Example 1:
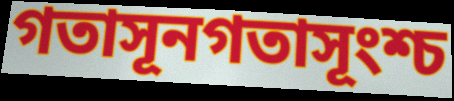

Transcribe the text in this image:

গতাসূনগতাসূংশ্চ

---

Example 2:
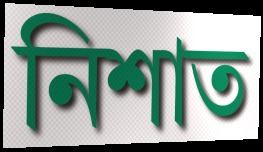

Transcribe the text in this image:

নিশাত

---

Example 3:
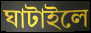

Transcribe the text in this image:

ঘাটাইলে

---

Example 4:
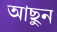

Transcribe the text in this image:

আছুন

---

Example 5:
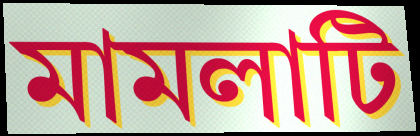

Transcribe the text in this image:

মামলাটি